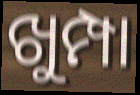
ଖୁମ୍ପା